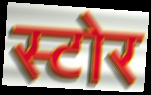
स्टोर